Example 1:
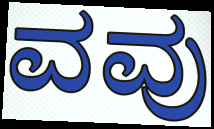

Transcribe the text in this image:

ವವು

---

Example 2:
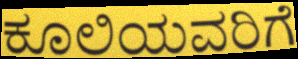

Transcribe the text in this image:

ಕೂಲಿಯವರಿಗೆ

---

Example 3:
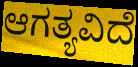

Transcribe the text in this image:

ಆಗತ್ಯವಿದೆ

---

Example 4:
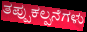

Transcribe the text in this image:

ತಪ್ಪುಕಲ್ಪನೆಗಳು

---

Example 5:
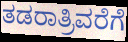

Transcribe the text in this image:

ತಡರಾತ್ರಿವರೆಗೆ